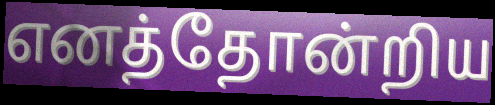
எனத்தோன்றிய